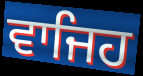
ਵਾਜਿਹ